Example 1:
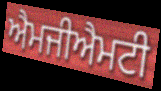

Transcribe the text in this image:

ਐਮਜੀਐਮਟੀ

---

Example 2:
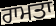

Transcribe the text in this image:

ਰਾਮਤਾ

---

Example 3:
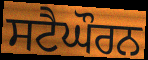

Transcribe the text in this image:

ਸਟੈਘੌਰਨ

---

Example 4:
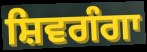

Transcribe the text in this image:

ਸ਼ਿਵਗੰਗਾ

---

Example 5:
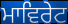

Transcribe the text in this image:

ਮਾਵਿਰੇਟ